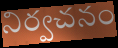
నిర్వచనం